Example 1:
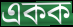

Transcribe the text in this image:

একক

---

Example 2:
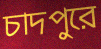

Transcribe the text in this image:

চাদপুরে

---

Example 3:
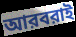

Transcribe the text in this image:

আরবরাই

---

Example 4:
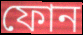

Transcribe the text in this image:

ফোন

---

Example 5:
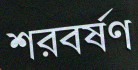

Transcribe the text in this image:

শরবর্ষণ